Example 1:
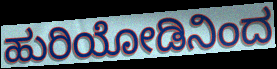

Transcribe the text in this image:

ಹುರಿಯೋಡಿನಿಂದ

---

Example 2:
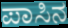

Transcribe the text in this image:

ಪಾಸಿನ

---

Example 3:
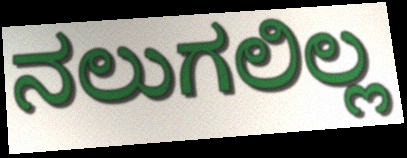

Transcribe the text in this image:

ನಲುಗಲಿಲ್ಲ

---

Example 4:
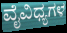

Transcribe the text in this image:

ವೈವಿಧ್ಯಗಳ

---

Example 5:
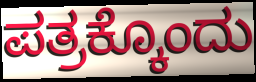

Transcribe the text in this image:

ಪತ್ರಕ್ಕೊಂದು